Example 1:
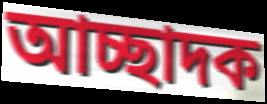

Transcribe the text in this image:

আচ্ছাদক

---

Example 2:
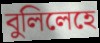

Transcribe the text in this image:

বুলিলেহে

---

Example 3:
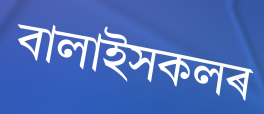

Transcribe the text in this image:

বালাইসকলৰ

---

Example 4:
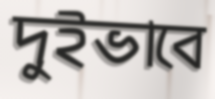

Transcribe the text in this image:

দুইভাবে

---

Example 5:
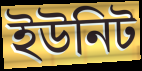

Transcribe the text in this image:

ইউনিট